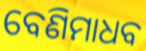
ବେଣିମାଧବ